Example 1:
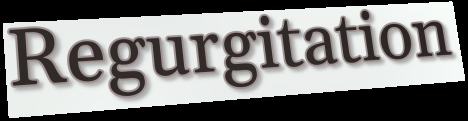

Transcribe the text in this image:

Regurgitation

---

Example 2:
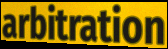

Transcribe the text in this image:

arbitration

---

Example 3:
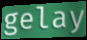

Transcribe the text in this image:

gelay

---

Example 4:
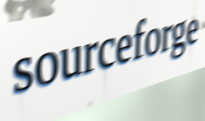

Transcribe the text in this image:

sourceforge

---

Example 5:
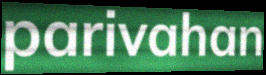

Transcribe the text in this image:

parivahan